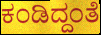
ಕಂಡಿದ್ದಂತೆ